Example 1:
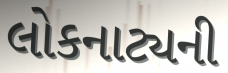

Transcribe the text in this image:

લોકનાટ્યની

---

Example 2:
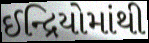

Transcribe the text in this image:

ઈન્દ્રિયોમાંથી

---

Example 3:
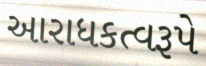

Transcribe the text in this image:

આરાધકત્વરૂપે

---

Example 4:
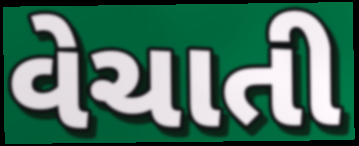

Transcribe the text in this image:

વેચાતી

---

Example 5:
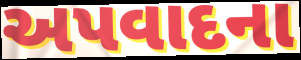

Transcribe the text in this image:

અપવાદના